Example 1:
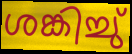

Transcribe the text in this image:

ശങ്കിച്ചു്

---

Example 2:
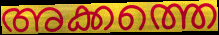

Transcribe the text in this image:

അക്കത്തെ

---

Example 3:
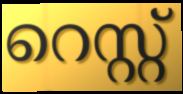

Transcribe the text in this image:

റെസ്റ്റ്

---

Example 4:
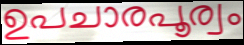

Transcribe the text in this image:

ഉപചാരപൂര്വം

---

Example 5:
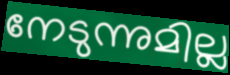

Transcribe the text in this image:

നേടുന്നുമില്ല